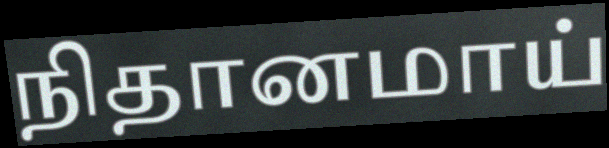
நிதானமாய்